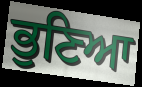
ਭੁਣਿਆ